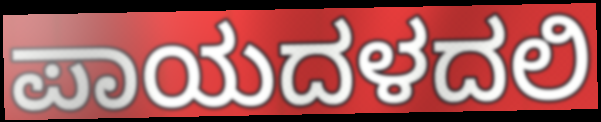
ಪಾಯದಳದಲಿ